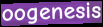
oogenesis